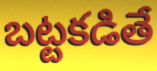
బట్టకడితే